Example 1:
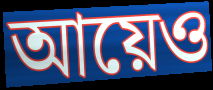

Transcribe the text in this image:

আয়েও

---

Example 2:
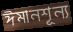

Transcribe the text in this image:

ঈমানশূন্য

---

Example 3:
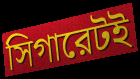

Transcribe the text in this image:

সিগারেটই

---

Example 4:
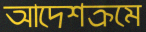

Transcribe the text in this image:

আদেশক্রমে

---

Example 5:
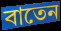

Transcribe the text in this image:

বাতেন